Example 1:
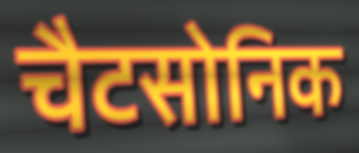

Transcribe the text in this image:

चैटसोनिक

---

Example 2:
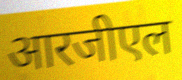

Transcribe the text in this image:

आरजीएल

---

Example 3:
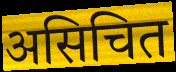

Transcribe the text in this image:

असिचित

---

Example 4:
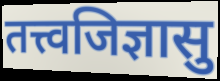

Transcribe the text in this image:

तत्त्वजिज्ञासु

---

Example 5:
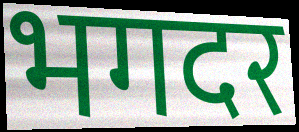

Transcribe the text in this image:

भगदर